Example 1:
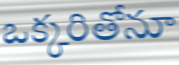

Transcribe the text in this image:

ఒక్కరితోనూ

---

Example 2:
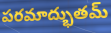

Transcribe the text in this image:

పరమాద్భుతమ్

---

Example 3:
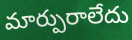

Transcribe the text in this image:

మార్పురాలేదు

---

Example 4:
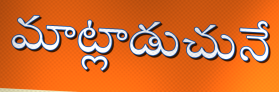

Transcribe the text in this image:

మాట్లాడుచునే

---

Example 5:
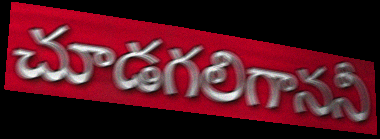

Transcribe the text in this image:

చూడగలిగాననీ